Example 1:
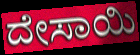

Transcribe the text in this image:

ದೇಸಾಯಿ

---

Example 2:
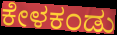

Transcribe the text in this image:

ಕೇಳಕಂಡು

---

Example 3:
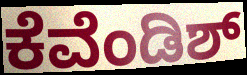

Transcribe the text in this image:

ಕೆವೆಂಡಿಶ್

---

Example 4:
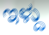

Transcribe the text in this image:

ಇಳ್ದು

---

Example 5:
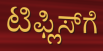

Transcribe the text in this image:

ಟಿಫ್ಲಿಸ್‍ಗೆ